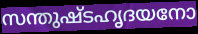
സന്തുഷ്ടഹൃദയനോ